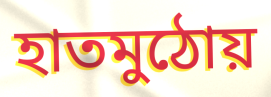
হাতমুঠোয়